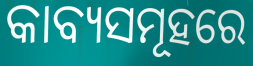
କାବ୍ୟସମୂହରେ